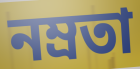
নম্রতা